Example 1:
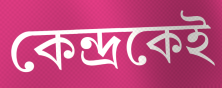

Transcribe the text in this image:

কেন্দ্রকেই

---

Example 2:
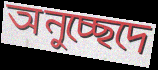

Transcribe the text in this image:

অনুচ্ছেদে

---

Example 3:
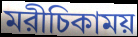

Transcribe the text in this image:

মরীচিকাময়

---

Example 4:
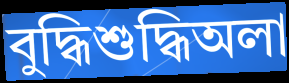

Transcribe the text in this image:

বুদ্ধিশুদ্ধিঅলা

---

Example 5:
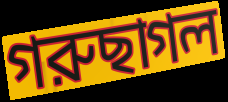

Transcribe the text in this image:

গরুছাগল